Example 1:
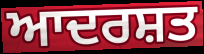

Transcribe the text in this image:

ਆਦਰਸ਼ਤ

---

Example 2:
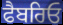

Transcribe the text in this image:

ਫੈਬਰਿਓ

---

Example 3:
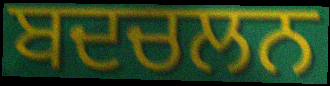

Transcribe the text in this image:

ਬਦਚਲਨ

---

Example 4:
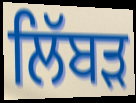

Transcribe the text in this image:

ਲਿੱਬੜ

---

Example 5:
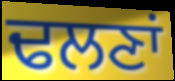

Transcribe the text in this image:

ਢਲਣਾਂ